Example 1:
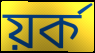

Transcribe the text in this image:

য়ৰ্ক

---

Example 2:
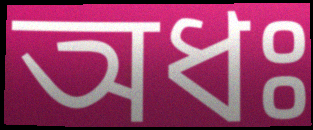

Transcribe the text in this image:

অধঃ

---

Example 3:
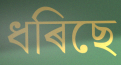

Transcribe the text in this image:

ধৰিছে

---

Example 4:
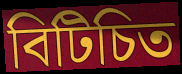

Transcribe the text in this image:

বিটিচিত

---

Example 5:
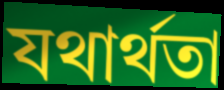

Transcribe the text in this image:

যথাৰ্থতা